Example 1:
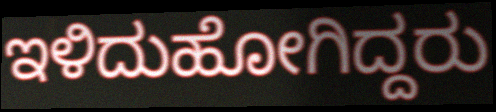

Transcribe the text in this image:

ಇಳಿದುಹೋಗಿದ್ದರು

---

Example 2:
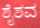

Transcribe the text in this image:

ಶೈಶವ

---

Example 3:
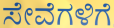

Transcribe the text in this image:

ಸೇವೆಗಳಿಗೆ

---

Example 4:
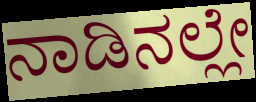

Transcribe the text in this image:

ನಾಡಿನಲ್ಲೇ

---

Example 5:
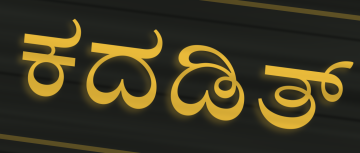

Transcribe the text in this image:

ಕದಡಿತ್